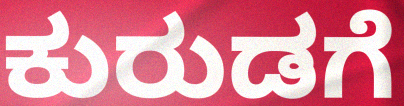
ಕುರುಡಗೆ